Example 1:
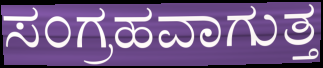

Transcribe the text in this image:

ಸಂಗ್ರಹವಾಗುತ್ತ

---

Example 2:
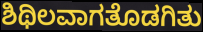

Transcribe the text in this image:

ಶಿಥಿಲವಾಗತೊಡಗಿತು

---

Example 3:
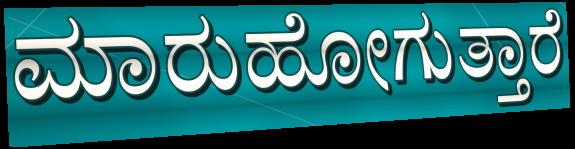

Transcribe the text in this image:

ಮಾರುಹೋಗುತ್ತಾರೆ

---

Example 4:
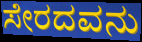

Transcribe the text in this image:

ಸೇರದವನು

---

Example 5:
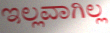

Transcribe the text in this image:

ಇಲ್ಲವಾಗಿಲ್ಲ